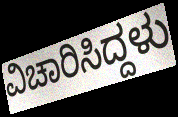
ವಿಚಾರಿಸಿದ್ದಳು